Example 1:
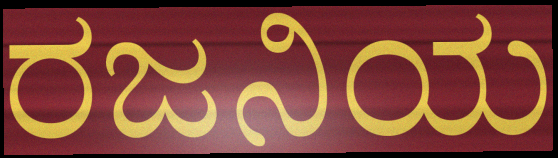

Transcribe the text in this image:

ರಜನಿಯ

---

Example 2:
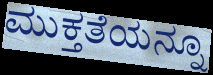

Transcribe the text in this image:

ಮುಕ್ತತೆಯನ್ನೂ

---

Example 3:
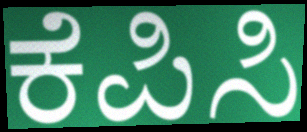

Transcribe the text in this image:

ಕೆಪಿಸಿ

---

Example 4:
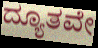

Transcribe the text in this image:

ದ್ಯೂತವೇ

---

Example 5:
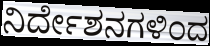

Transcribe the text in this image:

ನಿರ್ದೇಶನಗಳಿಂದ